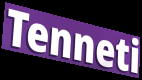
Tenneti